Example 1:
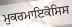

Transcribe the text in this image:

ਮੁਕਰਮਾਇਕੋਸਿਸ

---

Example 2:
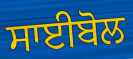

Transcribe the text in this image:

ਸਾਈਬੋਲ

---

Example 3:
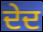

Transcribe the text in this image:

ਦੇਦ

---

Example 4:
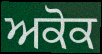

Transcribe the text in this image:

ਅਕੋਕ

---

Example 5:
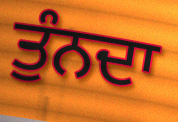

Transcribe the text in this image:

ਤੁੰਨਦਾ